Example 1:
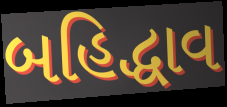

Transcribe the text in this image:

બહિદ્ધાવ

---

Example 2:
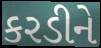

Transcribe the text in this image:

કરડીને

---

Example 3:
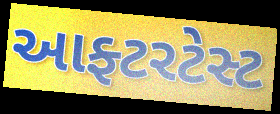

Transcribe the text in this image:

આફ્ટરટેસ્ટ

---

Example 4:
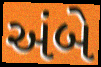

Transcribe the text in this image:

અંબે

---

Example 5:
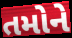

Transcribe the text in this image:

તમોને